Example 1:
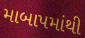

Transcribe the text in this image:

માબાપમાંથી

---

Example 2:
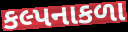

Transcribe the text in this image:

કલ્પનાકળા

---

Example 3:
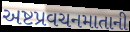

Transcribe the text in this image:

અષ્ટપ્રવચનમાતાની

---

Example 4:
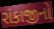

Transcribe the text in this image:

રાંકાજીનો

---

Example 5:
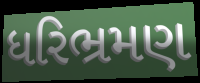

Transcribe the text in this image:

ધરિભ્રમણ